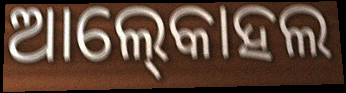
ଆଲ୍‍କୋହଲ